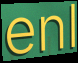
enl